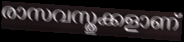
രാസവസ്തുക്കളാണ്